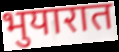
भुयारात